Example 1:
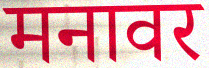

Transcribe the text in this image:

मनावर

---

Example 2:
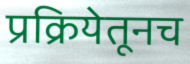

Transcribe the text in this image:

प्रक्रियेतूनच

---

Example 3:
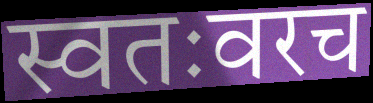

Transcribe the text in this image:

स्वतःवरच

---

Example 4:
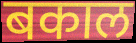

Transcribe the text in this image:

बकाल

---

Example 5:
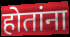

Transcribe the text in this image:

होतांना